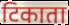
टिकाता